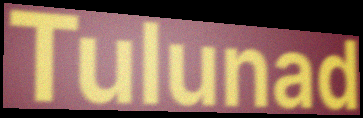
Tulunad